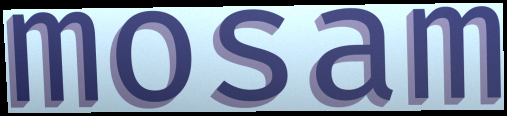
mosam